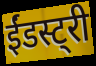
ईंडस्ट्री